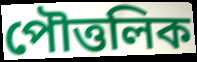
পৌত্তলিক